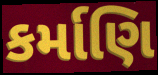
કર્માણિ